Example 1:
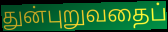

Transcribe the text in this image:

துன்புறுவதைப்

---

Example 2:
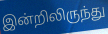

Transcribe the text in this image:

இன்றிலிருந்து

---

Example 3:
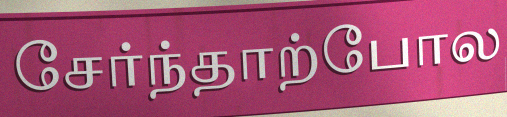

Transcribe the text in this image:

சேர்ந்தாற்போல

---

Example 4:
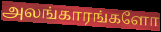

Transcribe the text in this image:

அலங்காரங்களோ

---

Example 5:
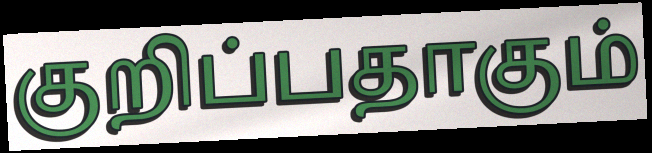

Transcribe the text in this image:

குறிப்பதாகும்